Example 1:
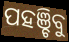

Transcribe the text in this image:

ପହଞ୍ଚିବୁ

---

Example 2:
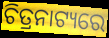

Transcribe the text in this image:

ଚିତ୍ରନାଟ୍ୟରେ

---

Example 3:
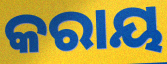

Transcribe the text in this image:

କରାୟ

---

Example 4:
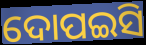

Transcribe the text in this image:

ଦୋପଇସି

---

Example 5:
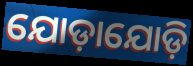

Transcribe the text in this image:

ଯୋଡ଼ାଯୋଡ଼ି